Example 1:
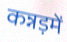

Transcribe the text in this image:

कन्नड़में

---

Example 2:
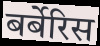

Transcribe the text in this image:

बर्बेरिस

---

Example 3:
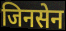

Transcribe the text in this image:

जिनसेन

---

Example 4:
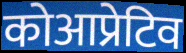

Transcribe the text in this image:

कोआप्रेटिव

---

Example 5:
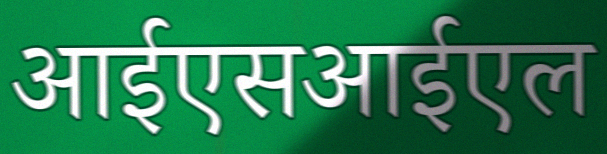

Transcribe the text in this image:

आईएसआईएल